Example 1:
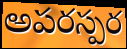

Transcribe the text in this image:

అపరస్పర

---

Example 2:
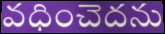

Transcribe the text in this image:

వధించెదను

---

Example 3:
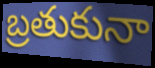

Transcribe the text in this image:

బ్రతుకునా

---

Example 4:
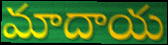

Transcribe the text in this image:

మాదాయ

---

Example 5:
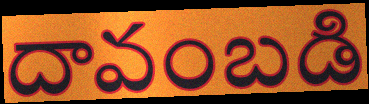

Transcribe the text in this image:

దావంబడి